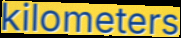
kilometers